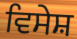
ਵਿਸੇਸ਼